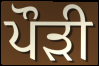
ਪੌੜੀ